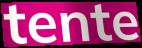
tente